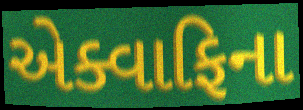
એક્વાફિના